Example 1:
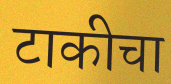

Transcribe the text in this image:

टाकीचा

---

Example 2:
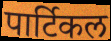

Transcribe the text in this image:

पार्टिकल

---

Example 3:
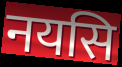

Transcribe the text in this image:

नयसि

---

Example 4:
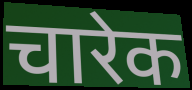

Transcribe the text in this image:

चारेक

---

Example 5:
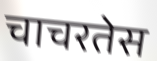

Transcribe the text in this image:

चाचरतेस